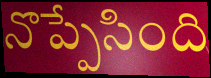
నొప్పేసింది